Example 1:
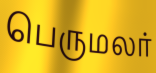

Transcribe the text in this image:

பெருமலர்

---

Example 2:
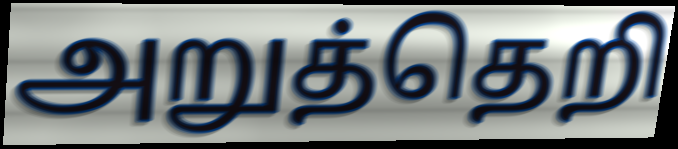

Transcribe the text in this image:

அறுத்தெறி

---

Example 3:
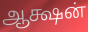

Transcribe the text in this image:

ஆக்ஷன்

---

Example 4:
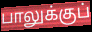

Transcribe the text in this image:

பாலுக்குப்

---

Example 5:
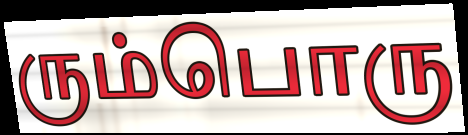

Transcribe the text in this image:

ரும்பொரு